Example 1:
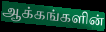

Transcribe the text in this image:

ஆக்கங்களின்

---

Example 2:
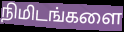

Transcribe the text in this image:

நிமிடங்களை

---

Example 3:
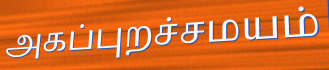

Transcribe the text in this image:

அகப்புறச்சமயம்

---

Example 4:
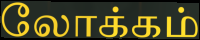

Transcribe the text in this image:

லோக்கம்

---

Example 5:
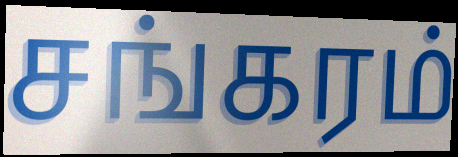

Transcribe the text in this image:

சங்கரம்